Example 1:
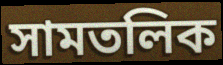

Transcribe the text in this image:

সামতলিক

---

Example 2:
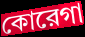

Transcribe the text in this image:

কোরেগা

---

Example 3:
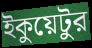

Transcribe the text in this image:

ইকুয়েটুর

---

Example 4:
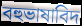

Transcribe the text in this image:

বহুভাষাবিদ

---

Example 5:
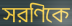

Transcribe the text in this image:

সরণিকে